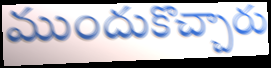
ముందుకొచ్చారు